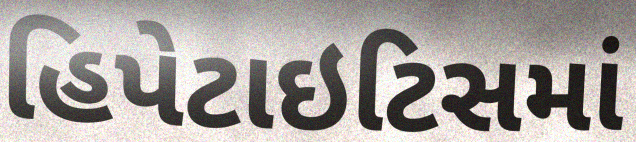
હિપેટાઇટિસમાં